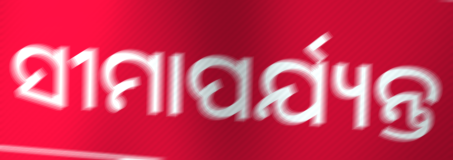
ସୀମାପର୍ଯ୍ୟନ୍ତ